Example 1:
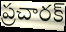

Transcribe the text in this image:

ప్రచారక్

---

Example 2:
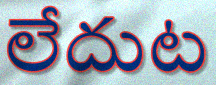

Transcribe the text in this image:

లేదుట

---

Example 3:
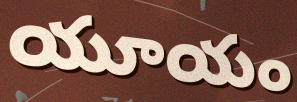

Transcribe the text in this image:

యూయం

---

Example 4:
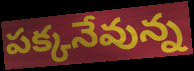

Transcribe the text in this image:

పక్కనేవున్న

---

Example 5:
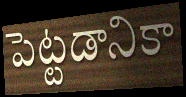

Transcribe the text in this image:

పెట్టడానికా